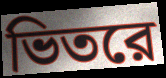
ভিতরে